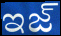
ఇజ్